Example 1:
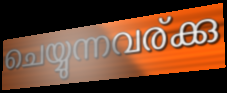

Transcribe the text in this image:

ചെയ്യുന്നവര്ക്കു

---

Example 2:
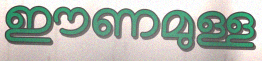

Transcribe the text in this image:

ഈണമുള്ള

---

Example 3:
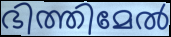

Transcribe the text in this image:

ഭിത്തിമേൽ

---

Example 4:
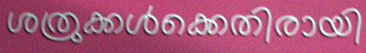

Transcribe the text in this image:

ശത്രുക്കൾക്കെതിരായി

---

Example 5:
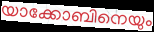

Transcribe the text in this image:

യാക്കോബിനെയും